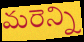
మరెన్ని